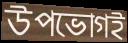
উপভোগই